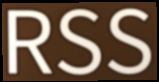
RSS